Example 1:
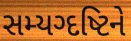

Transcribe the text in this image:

સમ્યગ્દષ્ટિને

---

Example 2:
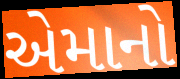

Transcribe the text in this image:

એમાનો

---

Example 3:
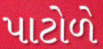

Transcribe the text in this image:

પાટોળે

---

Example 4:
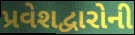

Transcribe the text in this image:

પ્રવેશદ્વારોની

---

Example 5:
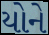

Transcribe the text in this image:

યોને